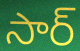
సార్